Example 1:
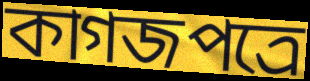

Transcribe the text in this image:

কাগজপত্রে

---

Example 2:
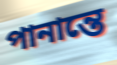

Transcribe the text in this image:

পানান্তে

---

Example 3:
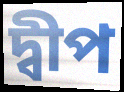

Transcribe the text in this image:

দ্বীপ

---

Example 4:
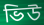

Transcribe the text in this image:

ভিউ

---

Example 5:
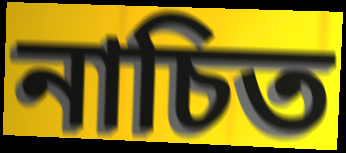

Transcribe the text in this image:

নাচিত